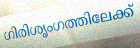
ഗിരിശൃംഗത്തിലേക്ക്